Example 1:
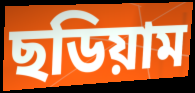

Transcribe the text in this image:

ছডিয়াম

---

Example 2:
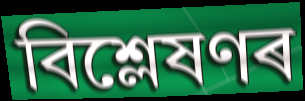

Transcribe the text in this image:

বিশ্লেষণৰ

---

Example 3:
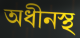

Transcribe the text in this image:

অধীনস্থ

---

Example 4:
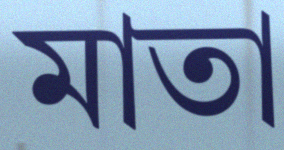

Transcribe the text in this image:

মাতা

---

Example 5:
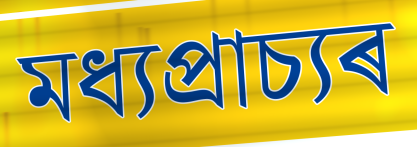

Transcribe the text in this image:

মধ্যপ্ৰাচ্যৰ